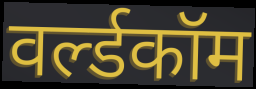
वर्ल्डकॉम